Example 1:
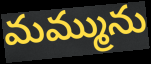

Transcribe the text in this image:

మమ్మును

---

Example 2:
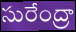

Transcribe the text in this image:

సురేంద్రా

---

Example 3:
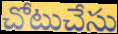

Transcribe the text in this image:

చోటుచేసు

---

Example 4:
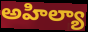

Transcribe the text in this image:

అహిల్యా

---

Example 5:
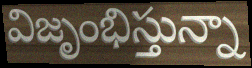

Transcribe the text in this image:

విజృంభిస్తున్నా